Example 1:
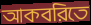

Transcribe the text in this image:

আকবরিতে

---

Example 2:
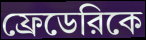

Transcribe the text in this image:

ফ্রেডেরিকে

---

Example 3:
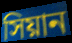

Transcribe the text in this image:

সিয়ান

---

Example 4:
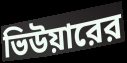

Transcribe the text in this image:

ভিউয়ারের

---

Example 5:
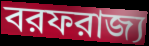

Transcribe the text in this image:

বরফরাজ্য